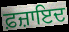
ਫ਼ਜ਼ਾਇਦ